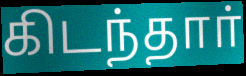
கிடந்தார்